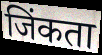
जिंकता